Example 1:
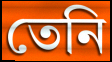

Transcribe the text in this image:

তেনি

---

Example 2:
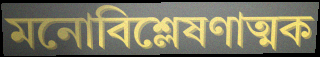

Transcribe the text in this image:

মনোবিশ্লেষণাত্মক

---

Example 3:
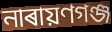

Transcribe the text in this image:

নাৰায়ণগঞ্জ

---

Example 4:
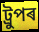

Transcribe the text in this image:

ট্ৰুপৰ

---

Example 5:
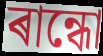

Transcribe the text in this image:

ৰান্ধো